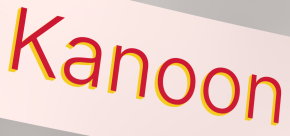
Kanoon